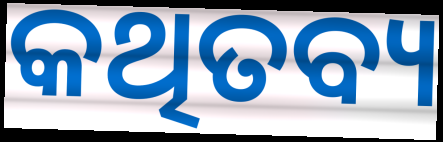
କଥିତବ୍ୟ